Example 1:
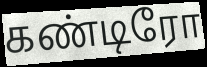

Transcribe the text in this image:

கண்டிரோ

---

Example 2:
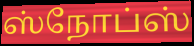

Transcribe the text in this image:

ஸ்நோப்ஸ்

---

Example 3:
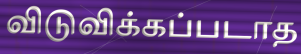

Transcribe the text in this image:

விடுவிக்கப்படாத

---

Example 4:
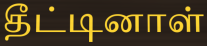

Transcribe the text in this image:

தீட்டினாள்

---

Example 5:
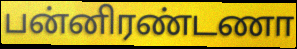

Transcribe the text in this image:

பன்னிரண்டணா